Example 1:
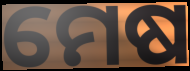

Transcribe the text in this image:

ମେଷ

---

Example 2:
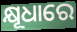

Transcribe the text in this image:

କ୍ଷୂଧାରେ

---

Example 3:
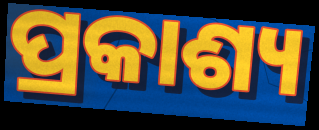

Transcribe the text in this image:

ପ୍ରକାଶ୍ୟ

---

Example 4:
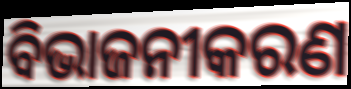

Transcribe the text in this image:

ବିଭାଜନୀକରଣ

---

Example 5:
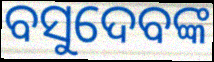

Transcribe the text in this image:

ବସୁଦେବଙ୍କ